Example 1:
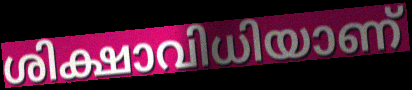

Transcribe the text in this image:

ശിക്ഷാവിധിയാണ്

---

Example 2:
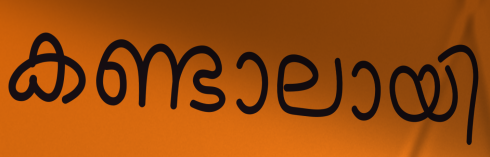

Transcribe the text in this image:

കണ്ടാലായി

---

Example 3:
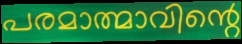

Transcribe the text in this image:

പരമാത്മാവിന്റെ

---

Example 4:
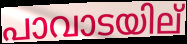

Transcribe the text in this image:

പാവാടയില്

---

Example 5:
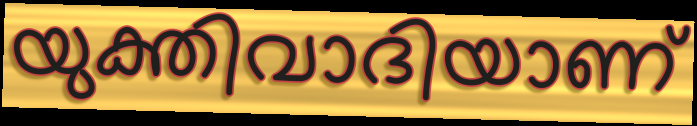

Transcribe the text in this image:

യുക്തിവാദിയാണ്